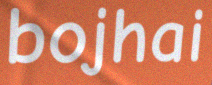
bojhai